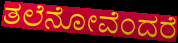
ತಲೆನೋವೆಂದರೆ